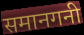
समानगनी